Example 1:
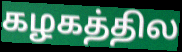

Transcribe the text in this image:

கழகத்தில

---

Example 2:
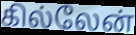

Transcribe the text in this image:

கில்லேன்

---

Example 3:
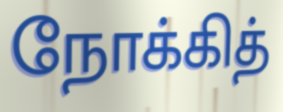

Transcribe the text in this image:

நோக்கித்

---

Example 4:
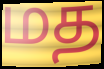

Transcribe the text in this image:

மத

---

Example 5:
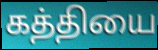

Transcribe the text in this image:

கத்தியை